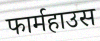
फार्महाउस